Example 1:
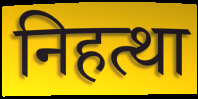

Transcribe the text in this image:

निहत्था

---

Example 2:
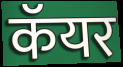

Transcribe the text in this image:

कॅयर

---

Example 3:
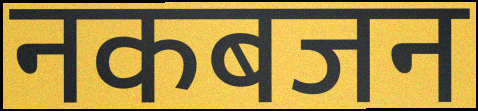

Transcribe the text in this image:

नकबजन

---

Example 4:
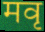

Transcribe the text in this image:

मवृ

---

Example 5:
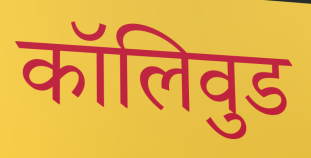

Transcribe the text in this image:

कॉलिवुड